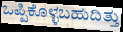
ಒಪ್ಪಿಕೊಳ್ಳಬಹುದಿತ್ತು